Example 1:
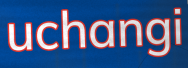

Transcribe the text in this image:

uchangi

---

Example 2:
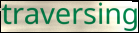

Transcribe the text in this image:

traversing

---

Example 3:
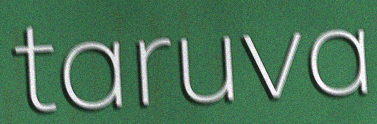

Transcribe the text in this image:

taruva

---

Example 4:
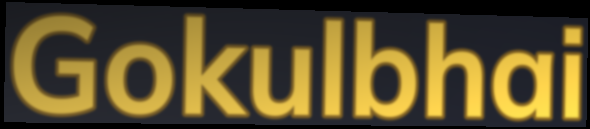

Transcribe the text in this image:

Gokulbhai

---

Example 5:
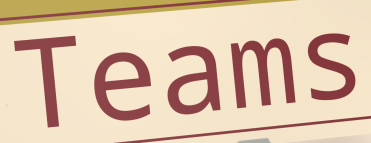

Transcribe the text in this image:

Teams